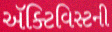
ઍક્ટિવિસ્ટની